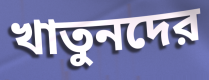
খাতুনদের